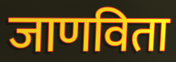
जाणविता